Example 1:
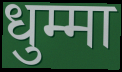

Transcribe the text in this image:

धुम्मा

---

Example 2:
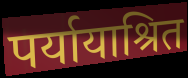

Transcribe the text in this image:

पर्यायाश्रित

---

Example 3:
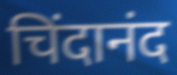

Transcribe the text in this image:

चिंदानंद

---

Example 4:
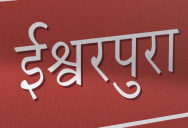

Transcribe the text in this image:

ईश्वरपुरा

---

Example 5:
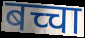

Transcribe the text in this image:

बच्‍चा